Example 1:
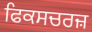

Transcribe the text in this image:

ਫਿਕਸਚਰਜ਼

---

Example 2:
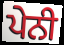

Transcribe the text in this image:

ਪੇਨੀ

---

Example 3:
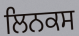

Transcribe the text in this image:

ਲਿਨਕਸ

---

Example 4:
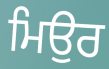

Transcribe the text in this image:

ਮਿਉਰ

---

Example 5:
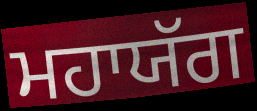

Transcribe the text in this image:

ਮਹਾਯੱਗ